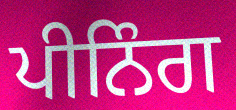
ਪੀਨਿੰਗ